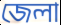
জেলা